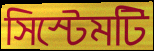
সিস্টেমটি